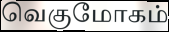
வெகுமோகம்